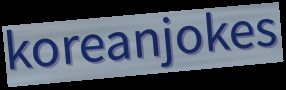
koreanjokes